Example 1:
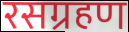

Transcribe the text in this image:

रसग्रहण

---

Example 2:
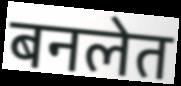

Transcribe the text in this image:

बनलेत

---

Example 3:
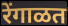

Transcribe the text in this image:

रेंगाळत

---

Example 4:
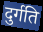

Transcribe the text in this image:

दुर्गति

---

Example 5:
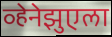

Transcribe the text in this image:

व्हेनेझुएला